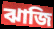
ঝাজি